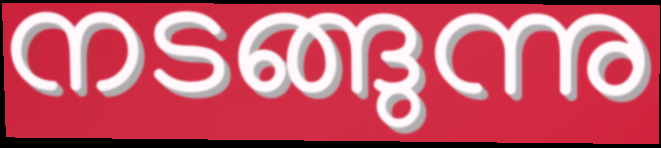
നടങ്ങുന്നു